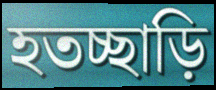
হতচ্ছাড়ি